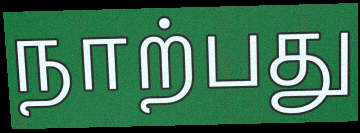
நாற்பது